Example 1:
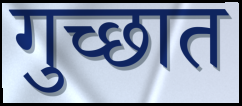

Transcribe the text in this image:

गुच्छात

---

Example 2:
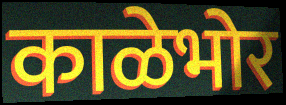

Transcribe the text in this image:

काळेभोर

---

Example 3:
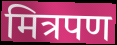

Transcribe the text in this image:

मित्रपण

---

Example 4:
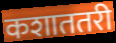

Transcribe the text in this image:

कशाततरी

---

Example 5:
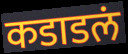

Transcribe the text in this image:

कडाडलं